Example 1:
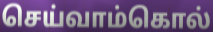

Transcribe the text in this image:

செய்வாம்கொல்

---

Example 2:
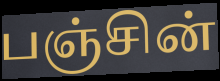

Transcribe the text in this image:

பஞ்சின்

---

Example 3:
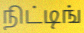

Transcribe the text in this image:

நிட்டிங்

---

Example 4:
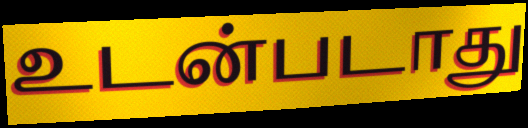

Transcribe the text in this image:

உடன்படாது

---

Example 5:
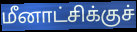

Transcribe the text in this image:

மீனாட்சிக்குச்